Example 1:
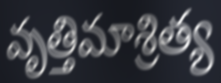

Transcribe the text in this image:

వృత్తిమాశ్రిత్య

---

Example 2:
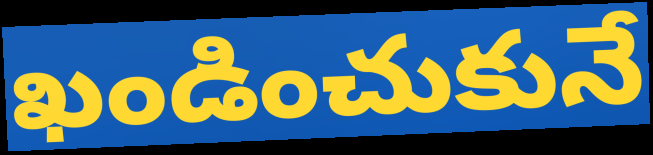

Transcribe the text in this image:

ఖండించుకునే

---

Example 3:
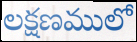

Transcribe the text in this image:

లక్షణములో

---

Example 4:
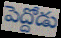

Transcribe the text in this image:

పెద్దోడు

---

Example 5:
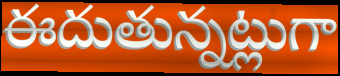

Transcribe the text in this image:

ఈదుతున్నట్లుగా